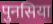
पुनसिया